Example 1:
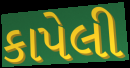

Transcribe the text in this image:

કાપેલી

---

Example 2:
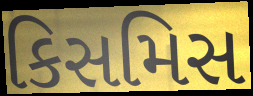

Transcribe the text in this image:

કિસમિસ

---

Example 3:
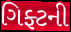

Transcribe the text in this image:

ગિફ્ટની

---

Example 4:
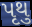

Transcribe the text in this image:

પૃથુ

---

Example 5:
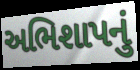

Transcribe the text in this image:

અભિશાપનું